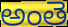
అంతె